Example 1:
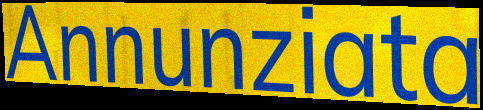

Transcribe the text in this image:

Annunziata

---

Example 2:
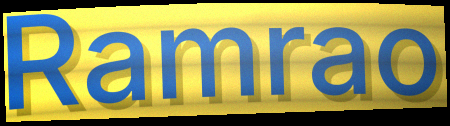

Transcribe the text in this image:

Ramrao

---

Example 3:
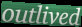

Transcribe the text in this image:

outlived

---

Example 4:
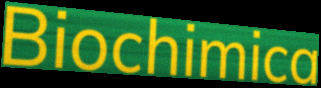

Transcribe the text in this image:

Biochimica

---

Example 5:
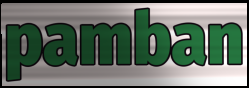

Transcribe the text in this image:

pamban